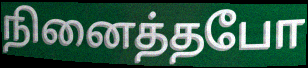
நினைத்தபோ